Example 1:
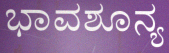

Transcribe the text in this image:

ಭಾವಶೂನ್ಯ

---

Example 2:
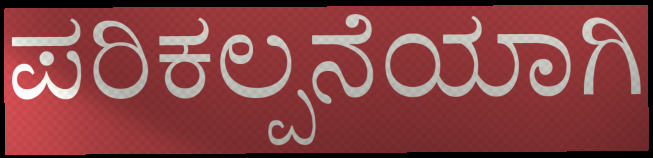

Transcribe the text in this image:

ಪರಿಕಲ್ಪನೆಯಾಗಿ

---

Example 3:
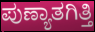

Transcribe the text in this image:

ಪುಣ್ಯಾತಗಿತ್ತಿ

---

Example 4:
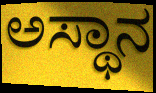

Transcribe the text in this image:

ಅಸ್ಥಾನ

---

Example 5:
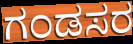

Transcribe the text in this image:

ಗಂಡಸರ